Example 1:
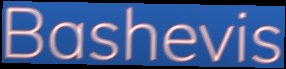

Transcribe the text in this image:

Bashevis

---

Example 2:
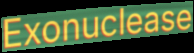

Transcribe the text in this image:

Exonuclease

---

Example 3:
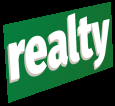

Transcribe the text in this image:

realty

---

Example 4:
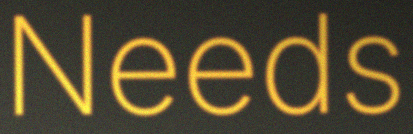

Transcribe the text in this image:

Needs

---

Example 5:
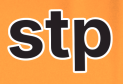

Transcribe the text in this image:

stp